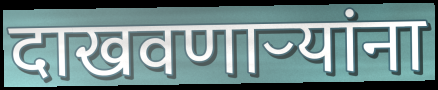
दाखवणाऱ्यांना